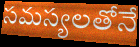
సమస్యలతోనే